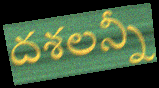
దశలన్నీ